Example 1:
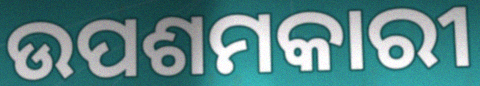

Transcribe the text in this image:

ଉପଶମକାରୀ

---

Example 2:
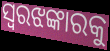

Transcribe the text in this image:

ସ୍ୱରଝଙ୍କାରକୁ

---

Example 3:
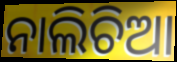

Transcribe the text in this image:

ନାଲିଚିଆ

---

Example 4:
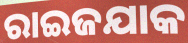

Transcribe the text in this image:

ରାଇଜଯାକ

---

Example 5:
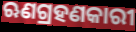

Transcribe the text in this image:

ଋଣଗ୍ରହଣକାରୀ